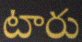
టారు